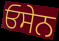
ਓਸੇਨ